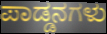
ಪಾಡ್ಡನಗಳು